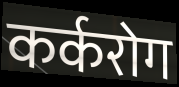
कर्करोग